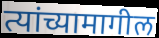
त्यांच्यामागील